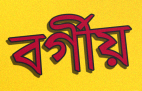
বৰ্গীয়